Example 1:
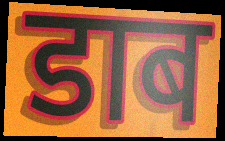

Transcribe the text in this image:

डाब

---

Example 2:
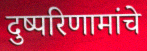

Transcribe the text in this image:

दुष्परिणामांचे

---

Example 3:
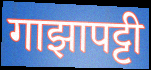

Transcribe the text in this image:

गाझापट्टी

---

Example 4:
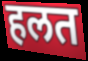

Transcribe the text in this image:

हलत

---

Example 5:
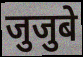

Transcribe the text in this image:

जुजुबे